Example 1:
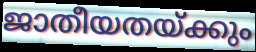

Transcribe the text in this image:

ജാതീയതയ്ക്കും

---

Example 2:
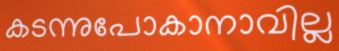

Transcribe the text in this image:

കടന്നുപോകാനാവില്ല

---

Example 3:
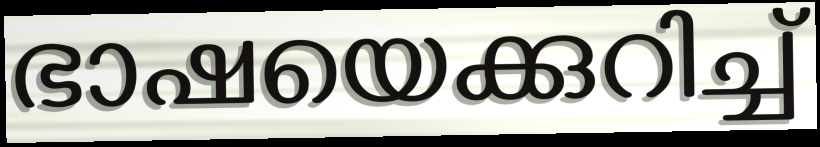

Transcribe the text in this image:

ഭാഷയെക്കുറിച്ച്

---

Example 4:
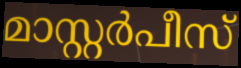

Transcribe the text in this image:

മാസ്റ്റർപീസ്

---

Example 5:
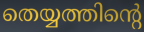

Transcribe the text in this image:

തെയ്യത്തിന്റെ